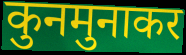
कुनमुनाकर